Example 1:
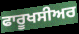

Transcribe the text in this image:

ਫਾਰੂਖਸੀਅਰ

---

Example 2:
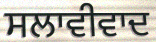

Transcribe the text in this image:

ਸਲਾਵੀਵਾਦ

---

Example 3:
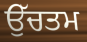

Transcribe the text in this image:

ਉੱਚਤਮ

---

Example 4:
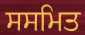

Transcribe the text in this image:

ਸਸਮਿਤ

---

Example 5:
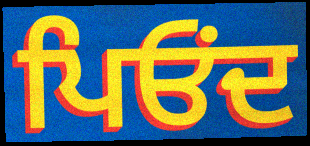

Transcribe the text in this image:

ਪਿਓਂਦ